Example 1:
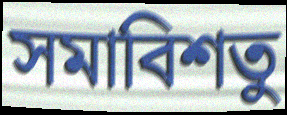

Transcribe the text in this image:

সমাবিশতু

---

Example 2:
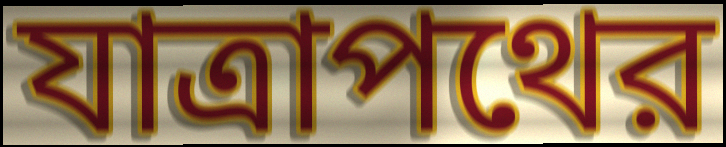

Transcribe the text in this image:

যাত্রাপথের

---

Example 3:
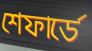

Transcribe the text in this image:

শেফার্ডে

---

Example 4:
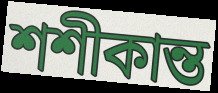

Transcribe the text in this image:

শশীকান্ত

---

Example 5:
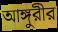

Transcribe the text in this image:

আঙ্গুরীর